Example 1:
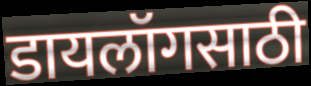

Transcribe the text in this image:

डायलॉगसाठी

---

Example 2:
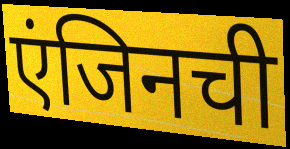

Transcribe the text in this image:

एंजिनची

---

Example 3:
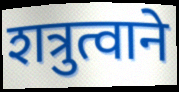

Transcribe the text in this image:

शत्रुत्वाने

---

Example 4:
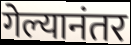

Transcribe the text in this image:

गेल्यानंतर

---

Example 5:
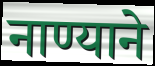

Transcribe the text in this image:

नाण्याने